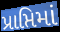
પ્રાપ્તિમાં